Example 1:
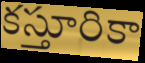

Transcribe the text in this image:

కస్తూరికా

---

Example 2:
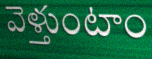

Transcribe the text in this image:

వెళ్తుంటాం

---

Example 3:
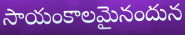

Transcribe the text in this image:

సాయంకాలమైనందున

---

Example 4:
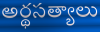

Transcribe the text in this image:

అర్థసత్యాలు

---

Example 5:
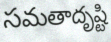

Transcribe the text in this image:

సమతాదృష్టి